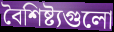
বৈশিষ্ট্যগুলো